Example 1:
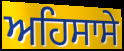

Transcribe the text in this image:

ਅਹਿਸਾਸੇ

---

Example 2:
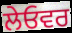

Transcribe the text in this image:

ਲੇਓਵਰ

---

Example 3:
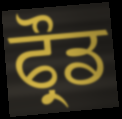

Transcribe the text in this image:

ਫ੍ਰੌਡ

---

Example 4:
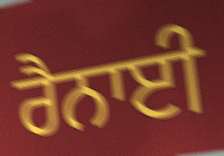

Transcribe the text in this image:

ਰੈਨਾਈ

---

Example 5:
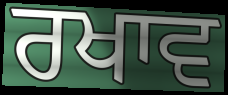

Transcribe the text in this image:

ਰਖਾਵ